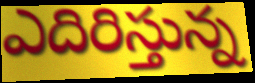
ఎదిరిస్తున్న